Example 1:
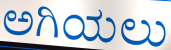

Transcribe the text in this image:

ಅಗಿಯಲು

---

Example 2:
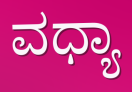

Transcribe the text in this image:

ವಧ್ಯಾ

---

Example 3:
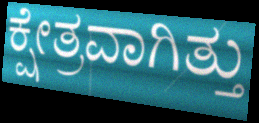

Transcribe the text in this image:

ಕ್ಷೇತ್ರವಾಗಿತ್ತು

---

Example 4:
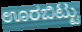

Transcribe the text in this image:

ಊರಬಿಟ್ಟು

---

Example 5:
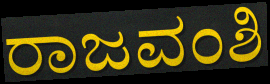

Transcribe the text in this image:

ರಾಜವಂಶಿ